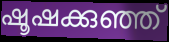
ഷൂഷക്കുഞ്ഞ്